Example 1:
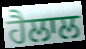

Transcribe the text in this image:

ਹੈਲਾਲ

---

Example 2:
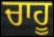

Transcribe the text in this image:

ਚਾਹੂ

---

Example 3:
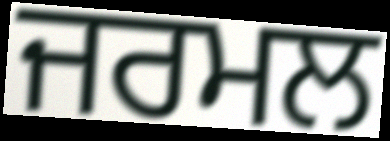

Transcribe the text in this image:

ਜਰਮਲ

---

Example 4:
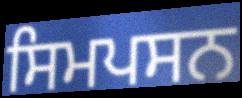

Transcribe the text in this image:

ਸਿਮਪਸਨ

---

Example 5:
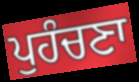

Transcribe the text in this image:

ਪੁਹੰਚਣਾ